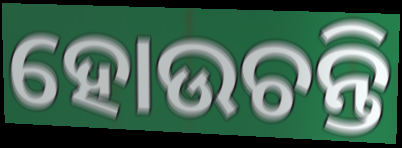
ହୋଉଚନ୍ତି